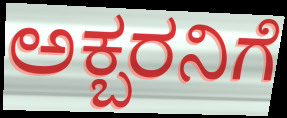
ಅಕ್ಬರನಿಗೆ